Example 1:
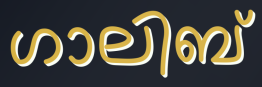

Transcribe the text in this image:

ഗാലിബ്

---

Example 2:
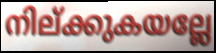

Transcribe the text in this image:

നില്ക്കുകയല്ലേ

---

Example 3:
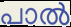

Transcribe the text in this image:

പാൽ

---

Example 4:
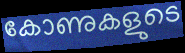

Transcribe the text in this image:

കോണുകളുടെ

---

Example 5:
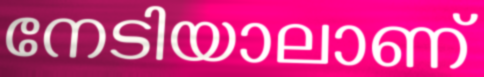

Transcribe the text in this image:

നേടിയാലാണ്